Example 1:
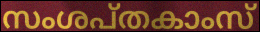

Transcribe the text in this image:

സംശപ്തകാംസ്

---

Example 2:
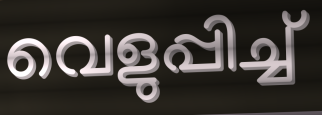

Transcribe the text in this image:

വെളുപ്പിച്ച്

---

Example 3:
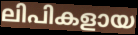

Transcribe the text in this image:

ലിപികളായ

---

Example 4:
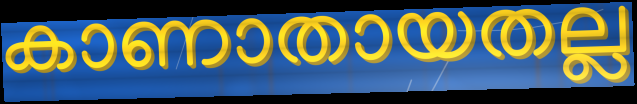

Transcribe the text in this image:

കാണാതായതല്ല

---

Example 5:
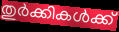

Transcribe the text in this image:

തുർക്കികൾക്ക്